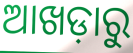
ଆଖଡ଼ାରୁ